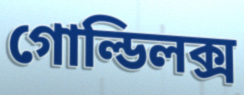
গোল্ডিলক্স